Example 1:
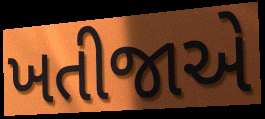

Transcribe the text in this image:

ખતીજાએ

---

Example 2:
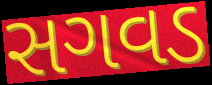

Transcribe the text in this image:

સગવડ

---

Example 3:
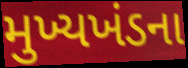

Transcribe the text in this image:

મુખ્યખંડના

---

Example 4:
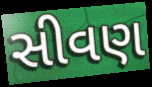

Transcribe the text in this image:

સીવણ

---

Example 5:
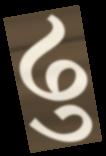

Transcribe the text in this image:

ઢુ